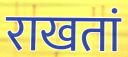
राखतां